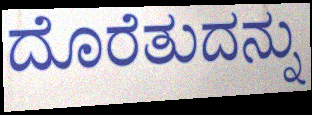
ದೊರೆತುದನ್ನು